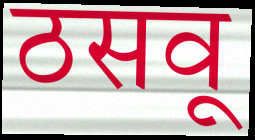
ठसवू